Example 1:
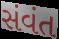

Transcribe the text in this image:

સંવંત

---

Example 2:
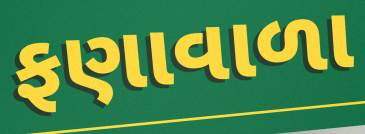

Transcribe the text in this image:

ફણાવાળા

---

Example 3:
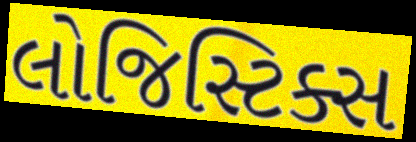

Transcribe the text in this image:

લોજિસ્ટિક્સ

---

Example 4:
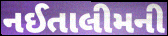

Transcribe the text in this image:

નઈતાલીમની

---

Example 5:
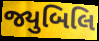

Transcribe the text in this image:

જ્યુબિલિ